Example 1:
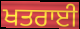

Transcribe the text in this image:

ਖਤਰਾਈ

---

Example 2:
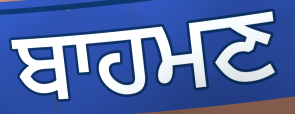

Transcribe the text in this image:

ਬਾਹਮਣ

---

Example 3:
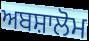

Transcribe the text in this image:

ਅਬਸ਼ਾਲੋਮ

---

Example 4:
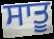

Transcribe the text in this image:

ਸਾਤੂ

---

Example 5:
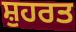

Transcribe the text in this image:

ਸ਼ੁਹਰਤ